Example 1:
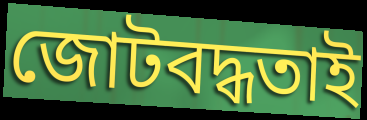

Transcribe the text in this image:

জোটবদ্ধতাই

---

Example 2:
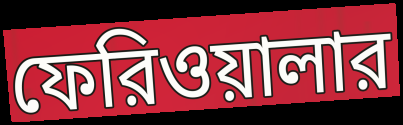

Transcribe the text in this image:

ফেরিওয়ালার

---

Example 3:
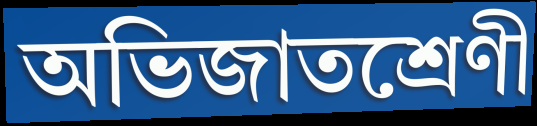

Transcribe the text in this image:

অভিজাতশ্রেণী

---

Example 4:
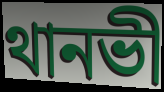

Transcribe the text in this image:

থানভী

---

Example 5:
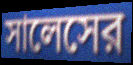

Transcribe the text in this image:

সালেসের